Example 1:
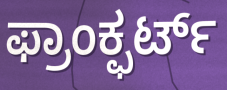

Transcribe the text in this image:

ಫ್ರಾಂಕ್ಫರ್ಟ್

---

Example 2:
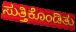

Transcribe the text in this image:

ಸುತ್ತಿಕೊಂಡಿತು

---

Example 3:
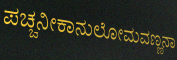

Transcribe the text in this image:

ಪಚ್ಚನೀಕಾನುಲೋಮವಣ್ಣನಾ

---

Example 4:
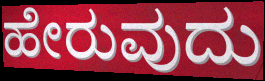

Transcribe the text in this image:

ಹೇರುವುದು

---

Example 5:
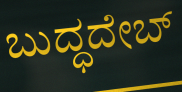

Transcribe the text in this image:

ಬುದ್ಧದೇಬ್